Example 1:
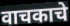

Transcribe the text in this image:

वाचकाचे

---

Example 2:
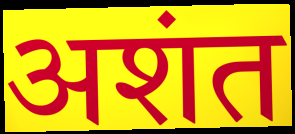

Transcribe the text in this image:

अशंत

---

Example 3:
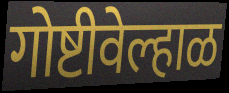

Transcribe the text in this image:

गोष्टीवेल्हाळ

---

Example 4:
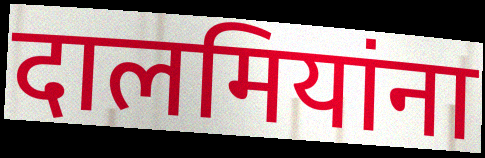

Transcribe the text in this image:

दालमियांना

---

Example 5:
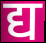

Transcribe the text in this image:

द्य